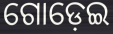
ଗୋଡ଼େଇ